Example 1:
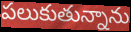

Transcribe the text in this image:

పలుకుతున్నాను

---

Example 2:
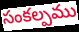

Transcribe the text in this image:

సంకల్పము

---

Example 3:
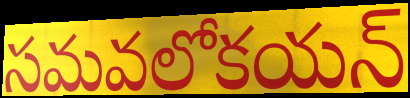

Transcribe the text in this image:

సమవలోకయన్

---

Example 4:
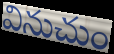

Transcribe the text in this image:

వినుచుం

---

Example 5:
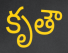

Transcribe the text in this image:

కృతౌ